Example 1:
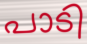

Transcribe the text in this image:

പാടി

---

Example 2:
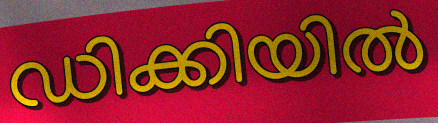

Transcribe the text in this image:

ഡിക്കിയിൽ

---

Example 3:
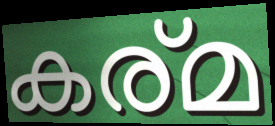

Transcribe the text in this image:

കര്മ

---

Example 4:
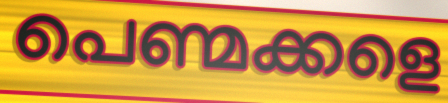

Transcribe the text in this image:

പെണ്മക്കളെ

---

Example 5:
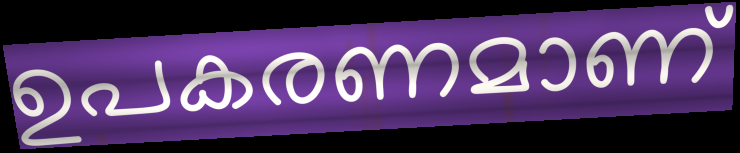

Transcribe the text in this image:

ഉപകരണമാണ്